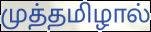
முத்தமிழால்